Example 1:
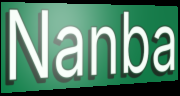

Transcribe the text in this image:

Nanba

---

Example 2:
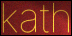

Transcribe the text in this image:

kath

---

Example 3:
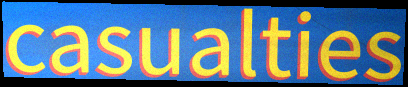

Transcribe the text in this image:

casualties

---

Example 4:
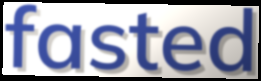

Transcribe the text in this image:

fasted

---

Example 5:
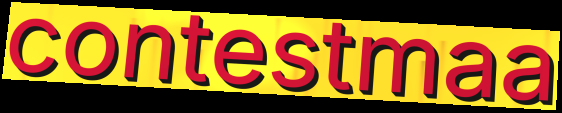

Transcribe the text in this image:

contestmaa